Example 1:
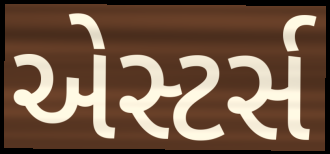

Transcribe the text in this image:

એસ્ટર્સ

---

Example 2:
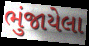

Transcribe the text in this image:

ભુંજાયેલા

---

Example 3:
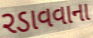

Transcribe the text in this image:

રડાવવાના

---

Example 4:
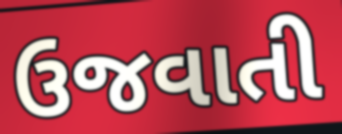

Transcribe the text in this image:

ઉજવાતી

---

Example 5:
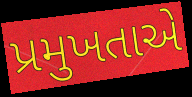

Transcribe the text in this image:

પ્રમુખતાએ